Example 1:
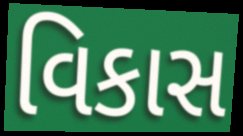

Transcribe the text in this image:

વિકાસ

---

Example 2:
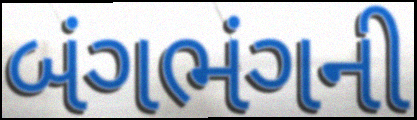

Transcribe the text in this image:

બંગભંગની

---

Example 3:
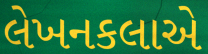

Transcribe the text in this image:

લેખનકલાએ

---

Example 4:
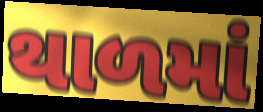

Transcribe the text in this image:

થાળમાં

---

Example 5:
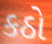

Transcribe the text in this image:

કઠો